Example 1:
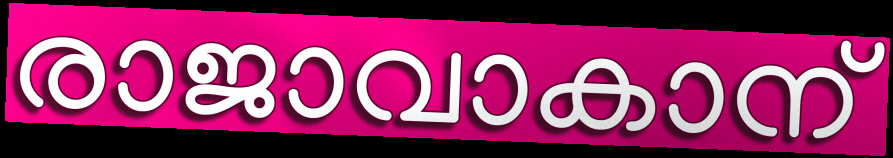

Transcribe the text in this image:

രാജാവാകാന്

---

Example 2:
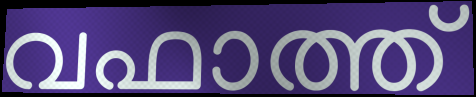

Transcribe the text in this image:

വഫാത്ത്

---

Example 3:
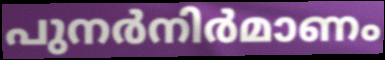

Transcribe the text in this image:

പുനർനിർമാണം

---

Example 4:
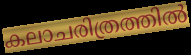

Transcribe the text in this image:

കലാചരിത്രത്തിൽ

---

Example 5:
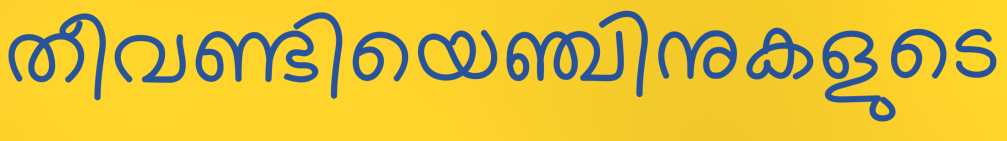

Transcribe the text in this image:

തീവണ്ടിയെഞ്ചിനുകളുടെ